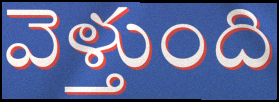
వెళ్తుంది